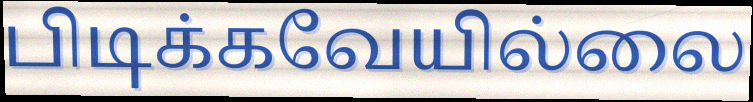
பிடிக்கவேயில்லை